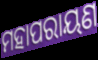
ମହାପରାୟଣ